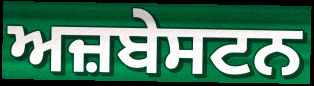
ਅਜ਼ਬੇਸਟਨ